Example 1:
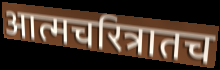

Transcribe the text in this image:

आत्मचरित्रातच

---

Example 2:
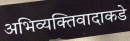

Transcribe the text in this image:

अभिव्यक्तिवादाकडे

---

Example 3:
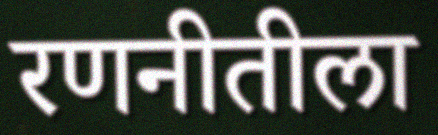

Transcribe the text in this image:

रणनीतीला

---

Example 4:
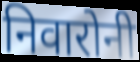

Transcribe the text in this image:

निवारोनी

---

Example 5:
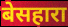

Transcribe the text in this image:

बेसहारा